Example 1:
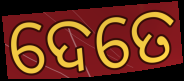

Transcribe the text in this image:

ଦେତେ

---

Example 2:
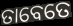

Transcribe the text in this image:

ତାବେତେ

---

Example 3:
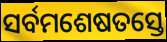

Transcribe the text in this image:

ସର୍ବମଶେଷତସ୍ତେ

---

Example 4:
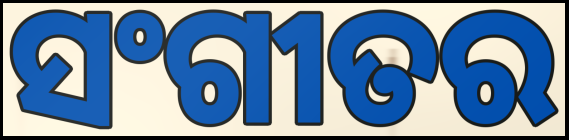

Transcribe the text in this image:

ସଂଗୀତର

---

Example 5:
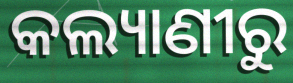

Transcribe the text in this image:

କଲ୍ୟାଣୀରୁ